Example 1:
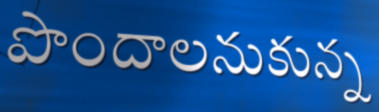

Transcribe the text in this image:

పొందాలనుకున్న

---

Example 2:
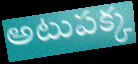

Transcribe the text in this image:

అటుపక్క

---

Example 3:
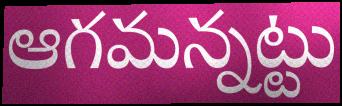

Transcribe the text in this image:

ఆగమన్నట్టు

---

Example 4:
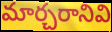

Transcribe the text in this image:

మార్చరానివి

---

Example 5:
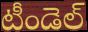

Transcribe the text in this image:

టీండెల్